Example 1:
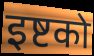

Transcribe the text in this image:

इष्टको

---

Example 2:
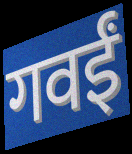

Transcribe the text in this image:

गवईं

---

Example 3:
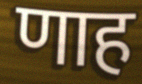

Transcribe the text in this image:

णाह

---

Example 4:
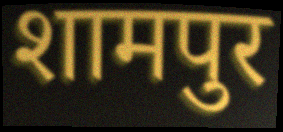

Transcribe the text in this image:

शामपुर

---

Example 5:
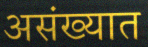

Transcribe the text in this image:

असंख्यात